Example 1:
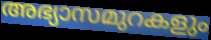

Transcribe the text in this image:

അഭ്യാസമുറകളും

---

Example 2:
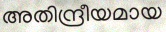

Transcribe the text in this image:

അതിന്ദ്രീയമായ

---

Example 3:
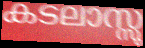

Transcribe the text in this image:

കടലാസ്സു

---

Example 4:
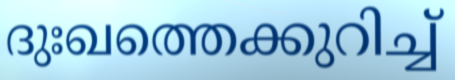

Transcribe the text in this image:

ദുഃഖത്തെക്കുറിച്ച്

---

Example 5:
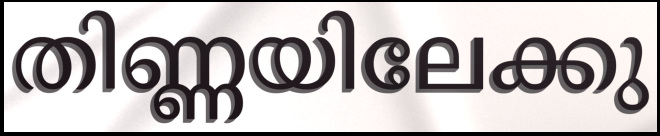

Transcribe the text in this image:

തിണ്ണയിലേക്കു